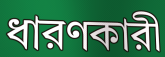
ধারণকারী